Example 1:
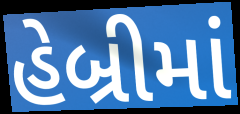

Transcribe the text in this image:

હેબ્રીમાં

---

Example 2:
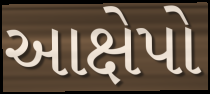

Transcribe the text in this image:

આક્ષેપો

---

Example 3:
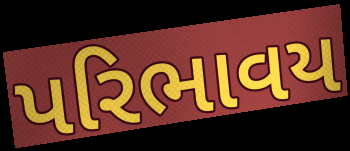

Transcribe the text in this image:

પરિભાવય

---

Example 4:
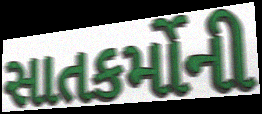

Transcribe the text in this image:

સાતકર્મોની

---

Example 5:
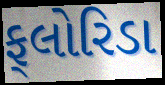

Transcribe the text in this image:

ફ્‌લોરિડા